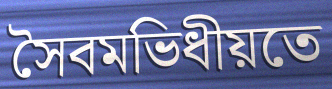
সৈবমভিধীয়তে